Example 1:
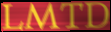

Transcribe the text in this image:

LMTD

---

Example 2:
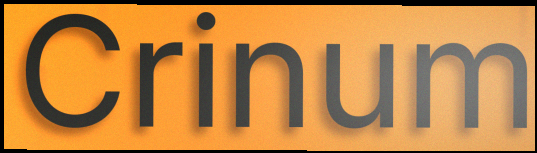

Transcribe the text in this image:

Crinum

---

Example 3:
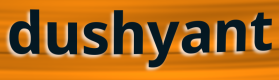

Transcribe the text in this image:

dushyant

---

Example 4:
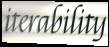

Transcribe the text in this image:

iterability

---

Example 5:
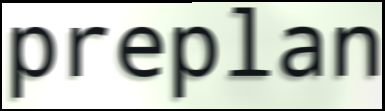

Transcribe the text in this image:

preplan